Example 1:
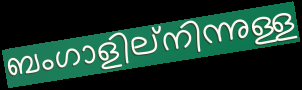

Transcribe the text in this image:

ബംഗാളില്നിന്നുള്ള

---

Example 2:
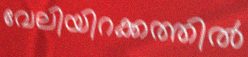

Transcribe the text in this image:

വേലിയിറക്കത്തിൽ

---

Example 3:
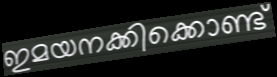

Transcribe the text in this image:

ഇമയനക്കിക്കൊണ്ട്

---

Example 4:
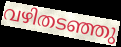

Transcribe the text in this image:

വഴിതടഞ്ഞു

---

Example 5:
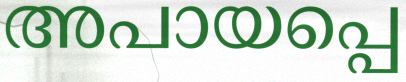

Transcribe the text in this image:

അപായപ്പെ